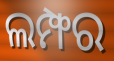
ଲମ୍ଫର